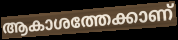
ആകാശത്തേക്കാണ്